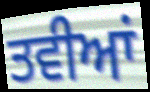
ਤਵੀਆਂ